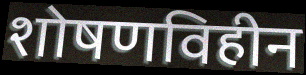
शोषणविहीन